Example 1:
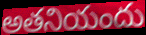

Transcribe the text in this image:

అతనియందు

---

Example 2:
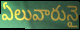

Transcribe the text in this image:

ఏలువారునై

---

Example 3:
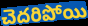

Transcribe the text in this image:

చెదరిపోయి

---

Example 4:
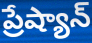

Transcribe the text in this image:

ప్రేష్యాన్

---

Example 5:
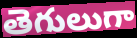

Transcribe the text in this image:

తెగులుగా